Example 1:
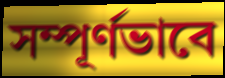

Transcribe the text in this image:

সম্পূর্ণভাবে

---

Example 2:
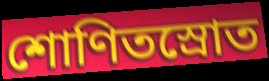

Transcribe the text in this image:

শোণিতস্রোত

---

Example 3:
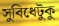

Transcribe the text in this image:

সুবিধেটুকু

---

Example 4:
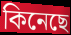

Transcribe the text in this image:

কিনেছে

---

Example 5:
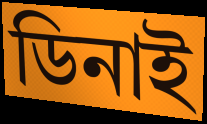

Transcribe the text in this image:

ডিনাই